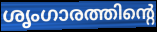
ശൃംഗാരത്തിന്റെ